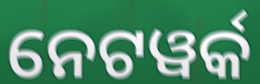
ନେଟୱର୍କ